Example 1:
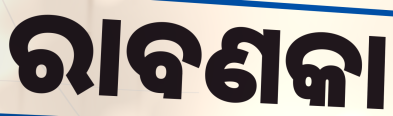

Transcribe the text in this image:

ରାବଣକା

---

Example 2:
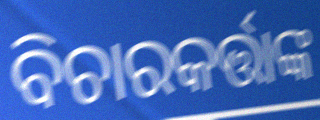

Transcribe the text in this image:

ବିଚାରକର୍ତ୍ତାଙ୍କ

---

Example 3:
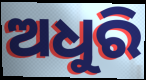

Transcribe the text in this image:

ଅଧୁରି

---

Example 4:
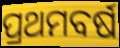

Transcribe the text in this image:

ପ୍ରଥମବର୍ଷ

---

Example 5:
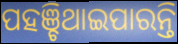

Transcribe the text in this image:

ପହଞ୍ଚିଥାଇପାରନ୍ତି